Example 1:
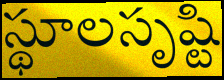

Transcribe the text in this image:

స్థూలసృష్టి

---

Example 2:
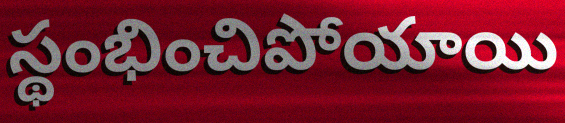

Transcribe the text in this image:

స్థంభించిపోయాయి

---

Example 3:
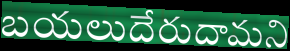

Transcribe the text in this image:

బయలుదేరుదామని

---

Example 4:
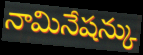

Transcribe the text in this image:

నామినేషన్కు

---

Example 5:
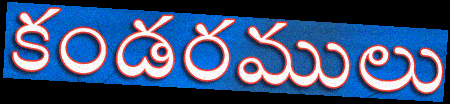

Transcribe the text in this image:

కండరములు